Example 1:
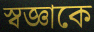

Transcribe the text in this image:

স্বজ্ঞাকে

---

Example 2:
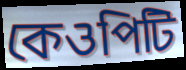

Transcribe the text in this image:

কেওপিটি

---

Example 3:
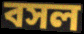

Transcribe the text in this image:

বসল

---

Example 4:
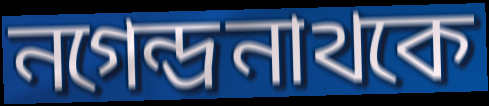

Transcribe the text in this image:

নগেন্দ্রনাথকে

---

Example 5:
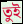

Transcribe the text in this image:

তুই